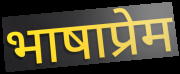
भाषाप्रेम